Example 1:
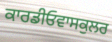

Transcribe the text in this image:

ਕਾਰਡੀਓਵਾਸਕੁਲਰ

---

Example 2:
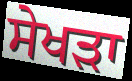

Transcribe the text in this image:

ਸੇਖੜਾ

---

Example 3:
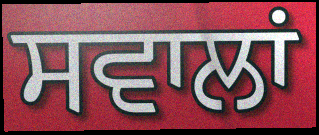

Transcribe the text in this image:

ਸਵਾਲਾਂ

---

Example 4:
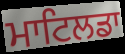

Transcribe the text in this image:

ਮਾਟਿਲਡਾ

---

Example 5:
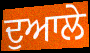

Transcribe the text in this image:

ਦੁਆਲੇ